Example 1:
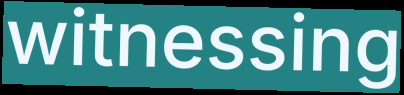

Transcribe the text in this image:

witnessing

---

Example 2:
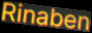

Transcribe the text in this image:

Rinaben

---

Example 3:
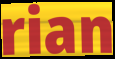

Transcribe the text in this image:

rian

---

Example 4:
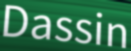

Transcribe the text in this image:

Dassin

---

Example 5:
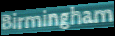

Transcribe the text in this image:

Birmingham